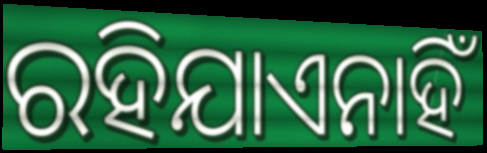
ରହିଯାଏନାହିଁ